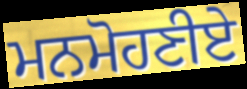
ਮਨਮੋਹਣੀਏ